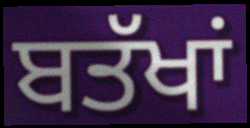
ਬਤੱਖਾਂ